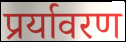
प्रर्यावरण